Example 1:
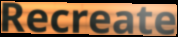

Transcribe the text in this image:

Recreate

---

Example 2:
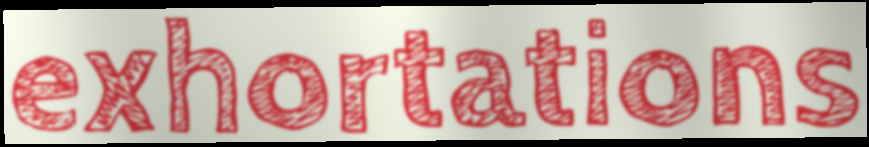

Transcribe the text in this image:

exhortations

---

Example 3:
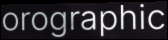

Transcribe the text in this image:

orographic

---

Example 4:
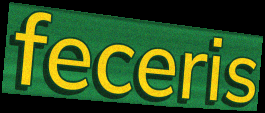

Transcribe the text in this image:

feceris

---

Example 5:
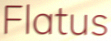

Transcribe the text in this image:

Flatus